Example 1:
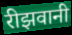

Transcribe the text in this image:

रीझवानी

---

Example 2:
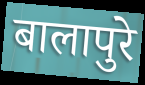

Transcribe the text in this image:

बालापुरे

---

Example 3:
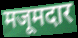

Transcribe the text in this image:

मजूमदार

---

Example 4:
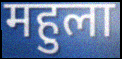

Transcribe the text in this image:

महुला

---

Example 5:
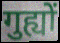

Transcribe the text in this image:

गुह्यों